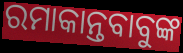
ରମାକାନ୍ତବାବୁଙ୍କ